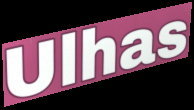
Ulhas